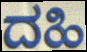
ದಹಿ